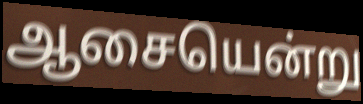
ஆசையென்று